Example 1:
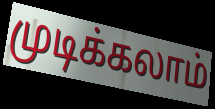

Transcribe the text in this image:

முடிக்கலாம்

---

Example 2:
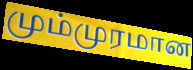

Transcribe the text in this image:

மும்முரமான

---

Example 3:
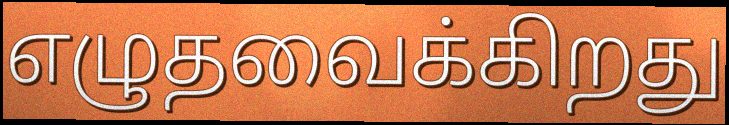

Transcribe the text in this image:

எழுதவைக்கிறது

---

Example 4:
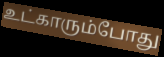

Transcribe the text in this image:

உட்காரும்போது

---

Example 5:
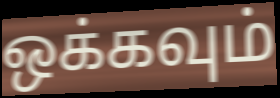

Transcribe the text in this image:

ஒக்கவும்